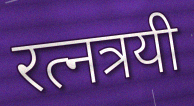
रत्नत्रयी